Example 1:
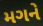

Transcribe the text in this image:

મગને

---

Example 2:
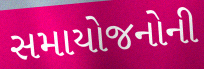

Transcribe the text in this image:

સમાયોજનોની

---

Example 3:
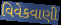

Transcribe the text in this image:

વિવેકવાણી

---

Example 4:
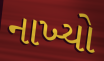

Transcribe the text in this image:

નાખ્યો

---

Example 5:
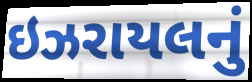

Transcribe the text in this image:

ઇઝરાયલનું